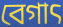
বেগাৎ